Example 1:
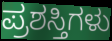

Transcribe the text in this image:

ಪ್ರಶಸ್ತಿಗಳು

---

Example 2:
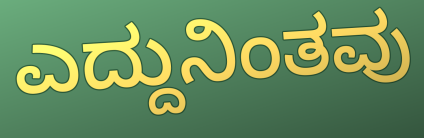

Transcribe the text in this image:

ಎದ್ದುನಿಂತವು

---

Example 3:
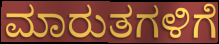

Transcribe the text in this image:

ಮಾರುತಗಳಿಗೆ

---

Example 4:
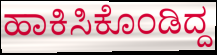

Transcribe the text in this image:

ಹಾಕಿಸಿಕೊಂಡಿದ್ದ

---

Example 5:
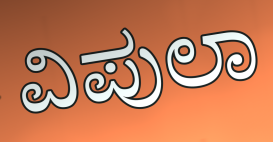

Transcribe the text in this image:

ವಿಪುಲಾ